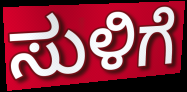
ಸುಳಿಗೆ